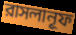
রাসলানূফ